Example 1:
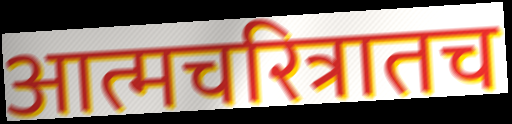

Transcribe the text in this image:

आत्मचरित्रातच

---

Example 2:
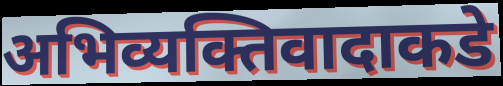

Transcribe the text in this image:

अभिव्यक्तिवादाकडे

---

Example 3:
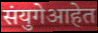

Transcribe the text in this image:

संयुगेआहेत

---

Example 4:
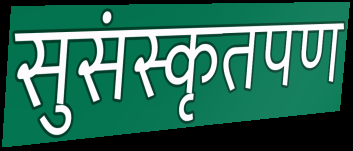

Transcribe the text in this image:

सुसंस्कृतपण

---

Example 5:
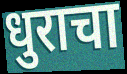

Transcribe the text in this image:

धुराचा